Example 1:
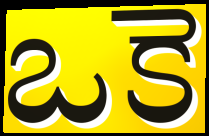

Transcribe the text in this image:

ఒకె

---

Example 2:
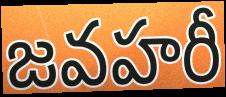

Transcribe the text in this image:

జవహరీ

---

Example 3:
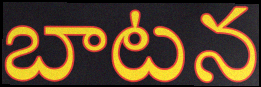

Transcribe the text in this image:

బాటన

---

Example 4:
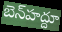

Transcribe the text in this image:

బెన్‍హద్దూ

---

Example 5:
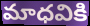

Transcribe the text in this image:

మాధవికి